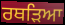
ਰਥੜਿਆ